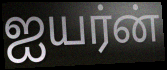
ஐயர்ன்